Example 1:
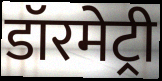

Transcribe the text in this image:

डॉरमेट्री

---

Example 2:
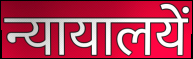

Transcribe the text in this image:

न्यायालयें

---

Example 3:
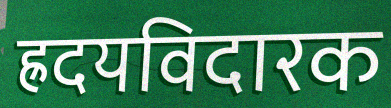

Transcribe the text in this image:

ह्रदयविदारक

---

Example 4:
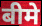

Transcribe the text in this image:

बीमे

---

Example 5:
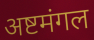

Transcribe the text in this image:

अष्टमंगल